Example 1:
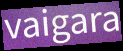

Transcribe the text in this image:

vaigara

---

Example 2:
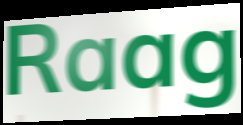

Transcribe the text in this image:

Raag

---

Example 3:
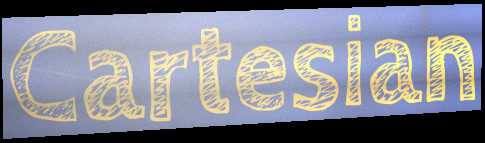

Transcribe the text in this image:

Cartesian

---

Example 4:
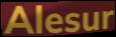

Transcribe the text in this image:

Alesur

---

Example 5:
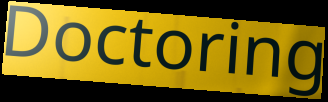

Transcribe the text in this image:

Doctoring